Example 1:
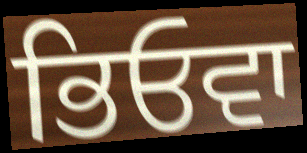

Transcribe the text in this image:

ਭਿਓਵਾ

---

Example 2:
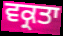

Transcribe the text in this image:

ਵਕ੍ਰਤਾ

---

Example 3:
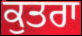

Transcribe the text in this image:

ਕੁਤਰਾ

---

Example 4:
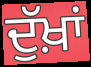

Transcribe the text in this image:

ਦੁੱਖ਼ਾਂ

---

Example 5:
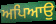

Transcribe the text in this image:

ਅਪਿਆਉ